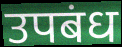
उपबंध